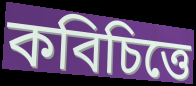
কবিচিত্তে